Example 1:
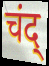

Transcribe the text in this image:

चंद्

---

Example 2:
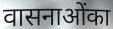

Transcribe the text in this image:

वासनाओंका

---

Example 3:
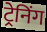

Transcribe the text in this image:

ट्रेनिंग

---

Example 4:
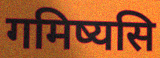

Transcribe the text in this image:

गमिष्यसि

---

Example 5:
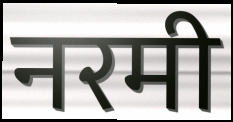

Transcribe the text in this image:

नरमी